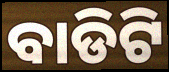
ବାଡିଟି